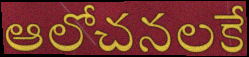
ఆలోచనలకే